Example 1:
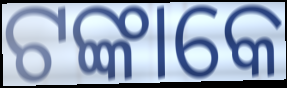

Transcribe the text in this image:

ଟଙ୍କାକେ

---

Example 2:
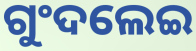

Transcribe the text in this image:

ଗୁଂଦଲେଇ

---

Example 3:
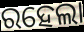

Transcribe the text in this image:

ରହେଲା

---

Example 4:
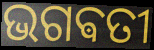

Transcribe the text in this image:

ଭଗଵତୀ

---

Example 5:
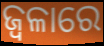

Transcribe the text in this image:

ଜ୍ୱଳାରେ